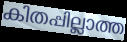
കിതപ്പില്ലാത്ത